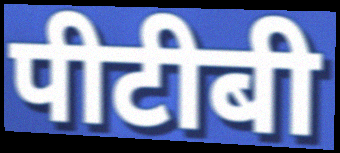
पीटीबी